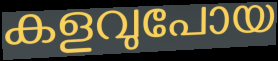
കളവുപോയ